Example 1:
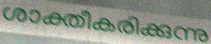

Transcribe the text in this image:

ശാക്തീകരിക്കുന്നു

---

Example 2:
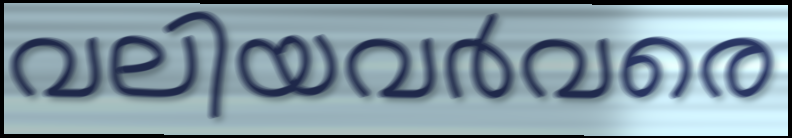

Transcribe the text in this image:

വലിയവർവരെ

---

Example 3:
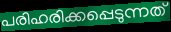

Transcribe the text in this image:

പരിഹരിക്കപ്പെടുന്നത്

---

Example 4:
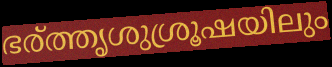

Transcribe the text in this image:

ഭര്ത്തൃശുശ്രൂഷയിലും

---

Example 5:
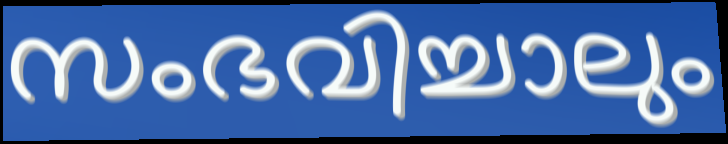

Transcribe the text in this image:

സംഭവിച്ചാലും